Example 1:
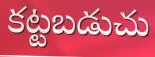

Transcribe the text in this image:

కట్టబడుచు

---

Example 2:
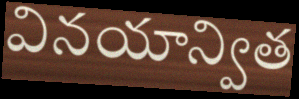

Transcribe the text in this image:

వినయాన్విత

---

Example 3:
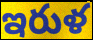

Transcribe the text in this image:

ఇరుళ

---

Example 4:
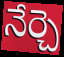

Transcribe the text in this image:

నేర్చె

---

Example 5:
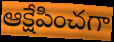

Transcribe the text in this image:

ఆక్షేపించగా